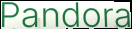
Pandora